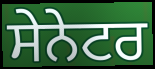
ਸੇਨੇਟਰ